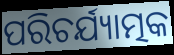
ପରିଚର୍ଯ୍ୟାତ୍ମକ